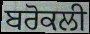
ਬਰੋਕਲੀ